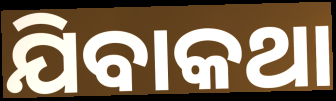
ଯିବାକଥା